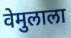
वेमुलाला